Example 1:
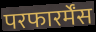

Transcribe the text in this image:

परफारर्मेंस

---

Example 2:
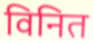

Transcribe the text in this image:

विनित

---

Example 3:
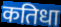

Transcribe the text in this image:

कतिधा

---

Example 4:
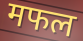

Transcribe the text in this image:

मफल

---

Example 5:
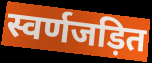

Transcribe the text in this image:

स्वर्णजड़ित